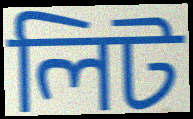
লিট